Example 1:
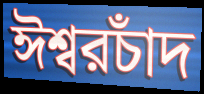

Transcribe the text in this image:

ঈশ্বরচাঁদ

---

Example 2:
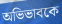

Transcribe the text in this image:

অভিভাবকে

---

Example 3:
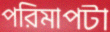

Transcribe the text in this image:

পরিমাপটা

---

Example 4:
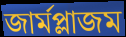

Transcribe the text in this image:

জার্মপ্লাজম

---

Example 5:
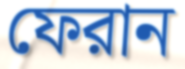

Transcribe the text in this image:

ফেরান